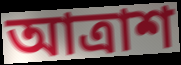
আত্রাশ